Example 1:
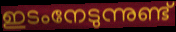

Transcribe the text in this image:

ഇടംനേടുന്നുണ്ട്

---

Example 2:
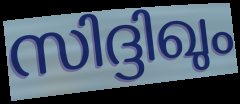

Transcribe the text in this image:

സിദ്ദിഖും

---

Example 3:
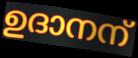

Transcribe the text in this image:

ഉദാനന്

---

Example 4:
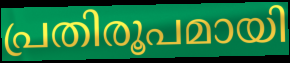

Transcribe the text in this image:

പ്രതിരൂപമായി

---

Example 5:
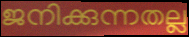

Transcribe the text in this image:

ജനിക്കുന്നതല്ല